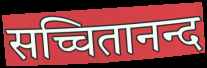
सच्चितानन्द